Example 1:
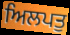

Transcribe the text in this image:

ਅਿਲਪਤੁ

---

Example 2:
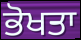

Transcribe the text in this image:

ਭੋਖਤਾ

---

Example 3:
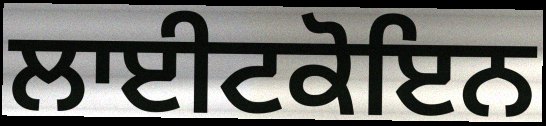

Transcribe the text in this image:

ਲਾਈਟਕੋਇਨ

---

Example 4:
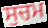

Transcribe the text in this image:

ਸੁਚਮ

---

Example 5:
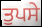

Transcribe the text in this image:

ਤੁਪਸੇ